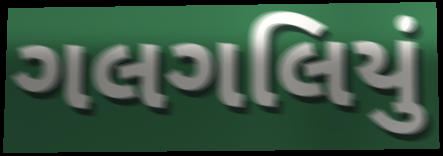
ગલગલિયું